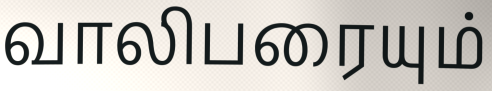
வாலிபரையும்